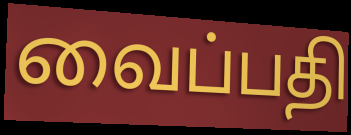
வைப்பதி